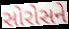
સોરોસને